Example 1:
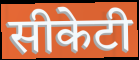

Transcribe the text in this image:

सीकेटी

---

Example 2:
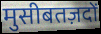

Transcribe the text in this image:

मुसीबतज़दों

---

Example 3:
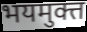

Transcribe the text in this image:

भयमुक्त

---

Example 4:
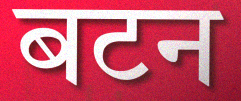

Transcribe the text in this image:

बटन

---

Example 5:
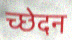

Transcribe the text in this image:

च्छेदन